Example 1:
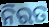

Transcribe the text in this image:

ନିରତ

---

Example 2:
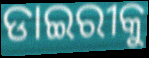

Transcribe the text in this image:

ଡାଇରୀକୁ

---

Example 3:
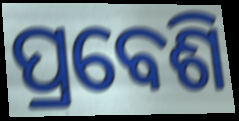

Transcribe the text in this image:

ପ୍ରବେଶି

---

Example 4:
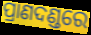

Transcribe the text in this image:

ପ୍ରାଣଦଣ୍ଡରେ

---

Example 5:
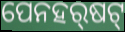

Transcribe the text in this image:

ପେନହର୍‍ଷଟ୍